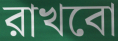
রাখবো